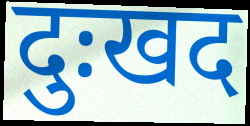
दुःखद